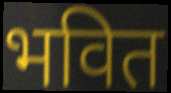
भवित